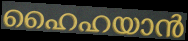
ഹൈഹയാൻ